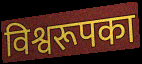
विश्वरूपका